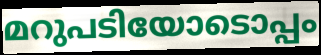
മറുപടിയോടൊപ്പം